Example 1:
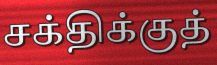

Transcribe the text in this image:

சக்திக்குத்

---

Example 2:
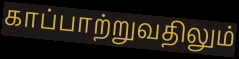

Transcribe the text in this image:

காப்பாற்றுவதிலும்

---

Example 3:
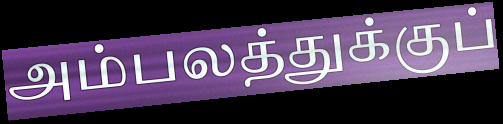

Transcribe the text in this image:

அம்பலத்துக்குப்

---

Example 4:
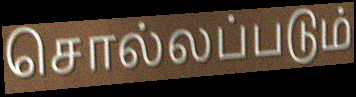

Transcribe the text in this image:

சொல்லப்படும்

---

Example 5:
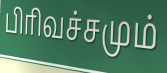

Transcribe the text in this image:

பிரிவச்சமும்